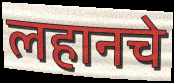
लहानचे